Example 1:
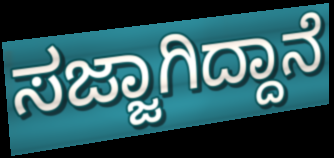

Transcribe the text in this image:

ಸಜ್ಜಾಗಿದ್ದಾನೆ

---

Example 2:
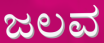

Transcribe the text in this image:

ಜಲವ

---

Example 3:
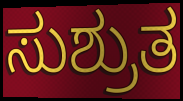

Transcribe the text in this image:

ಸುಶ್ರುತ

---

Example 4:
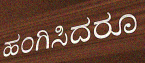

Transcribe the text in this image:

ಹಂಗಿಸಿದರೂ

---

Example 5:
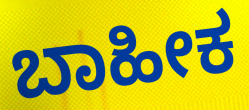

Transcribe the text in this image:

ಬಾಹೀಕ